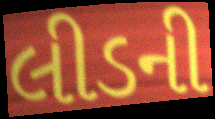
લીડની